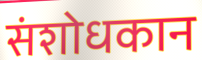
संशोधकान